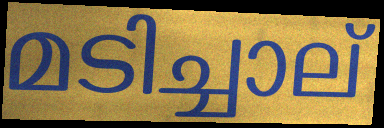
മടിച്ചാല്